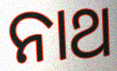
ନାଥ